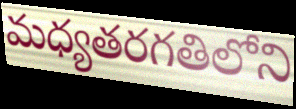
మధ్యతరగతిలోని